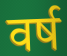
वर्ष